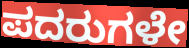
ಪದರುಗಳೇ